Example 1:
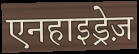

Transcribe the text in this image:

एनहाइड्रेज़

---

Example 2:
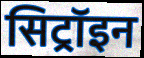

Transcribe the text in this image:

सिट्रॉइन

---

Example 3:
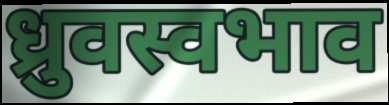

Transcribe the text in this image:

ध्रुवस्वभाव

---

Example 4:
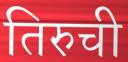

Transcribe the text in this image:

तिरुची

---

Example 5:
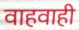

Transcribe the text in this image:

वाहवाही